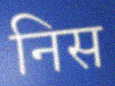
निस